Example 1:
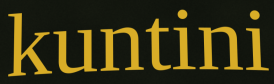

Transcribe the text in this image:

kuntini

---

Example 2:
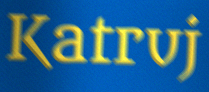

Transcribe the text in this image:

Katruj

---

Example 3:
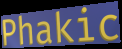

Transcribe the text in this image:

Phakic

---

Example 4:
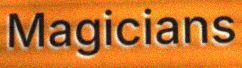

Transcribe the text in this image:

Magicians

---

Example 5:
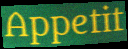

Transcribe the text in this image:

Appetit